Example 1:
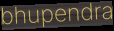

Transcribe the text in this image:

bhupendra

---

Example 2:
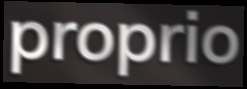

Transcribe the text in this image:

proprio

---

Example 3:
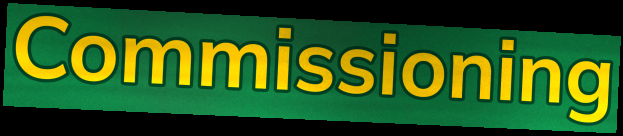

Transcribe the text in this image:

Commissioning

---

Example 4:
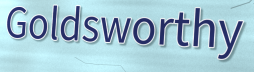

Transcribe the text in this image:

Goldsworthy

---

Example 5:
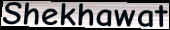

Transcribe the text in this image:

Shekhawat